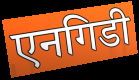
एनगिडी